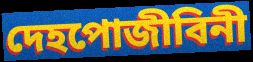
দেহপোজীবিনী